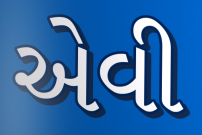
એવી